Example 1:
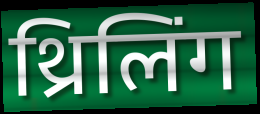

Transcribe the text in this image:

थ्रिलिंग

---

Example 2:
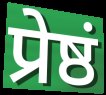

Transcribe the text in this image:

प्रेष्ठं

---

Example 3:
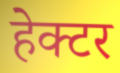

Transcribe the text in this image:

हेक्टर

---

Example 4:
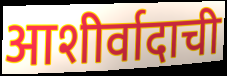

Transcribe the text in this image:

आशीर्वादाची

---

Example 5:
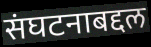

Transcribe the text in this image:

संघटनाबद्दल